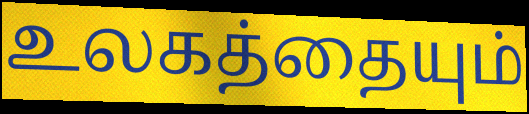
உலகத்தையும்